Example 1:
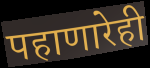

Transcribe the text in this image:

पहाणारेही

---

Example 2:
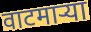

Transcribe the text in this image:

वाटमाऱ्या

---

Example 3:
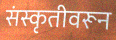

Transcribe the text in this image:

संस्कृतीवरून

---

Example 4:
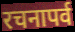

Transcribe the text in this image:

रचनापर्व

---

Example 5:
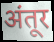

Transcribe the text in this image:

अंतूर